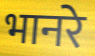
भानरे